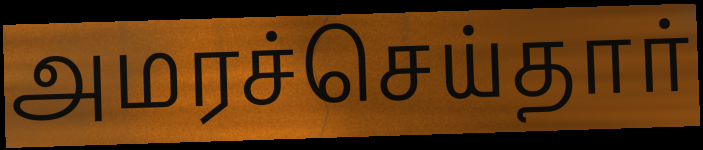
அமரச்செய்தார்